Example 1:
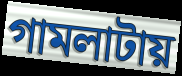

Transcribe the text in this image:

গামলাটায়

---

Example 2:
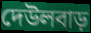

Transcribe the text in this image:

দেউলবাড়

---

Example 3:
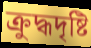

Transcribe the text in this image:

ক্রুদ্ধদৃষ্টি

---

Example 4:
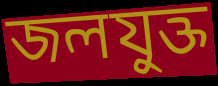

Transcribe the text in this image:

জলযুক্ত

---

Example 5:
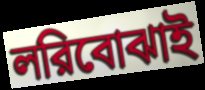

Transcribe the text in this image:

লরিবোঝাই